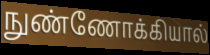
நுண்ணோக்கியால்